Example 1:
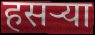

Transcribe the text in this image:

हसऱ्या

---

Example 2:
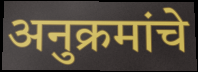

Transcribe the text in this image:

अनुक्रमांचे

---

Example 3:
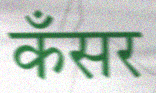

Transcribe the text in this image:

कँसर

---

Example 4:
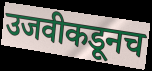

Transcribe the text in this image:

उजवीकडूनच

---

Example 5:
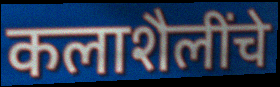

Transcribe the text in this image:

कलाशैलींचे